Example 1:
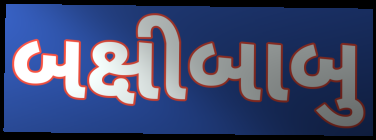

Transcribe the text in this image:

બક્ષીબાબુ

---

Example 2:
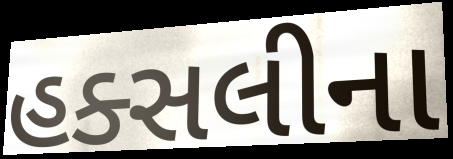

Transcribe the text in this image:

હક્સલીના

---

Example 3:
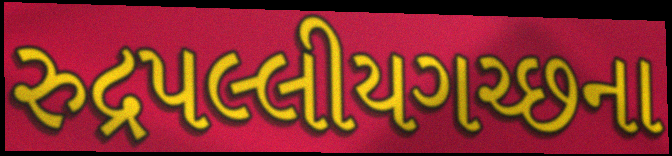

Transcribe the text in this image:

રુદ્રપલ્લીયગચ્છના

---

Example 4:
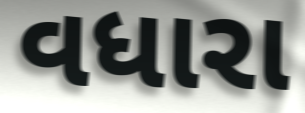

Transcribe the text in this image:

વધારા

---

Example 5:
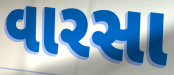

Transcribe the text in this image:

વારસા